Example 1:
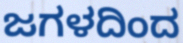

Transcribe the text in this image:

ಜಗಳದಿಂದ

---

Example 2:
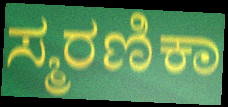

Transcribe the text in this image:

ಸ್ಮರಣಿಕಾ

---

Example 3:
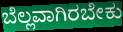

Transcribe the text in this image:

ಬೆಲ್ಲವಾಗಿರಬೇಕು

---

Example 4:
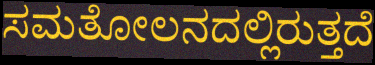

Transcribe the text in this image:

ಸಮತೋಲನದಲ್ಲಿರುತ್ತದೆ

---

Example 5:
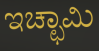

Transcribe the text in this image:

ಇಚ್ಛಾಮಿ